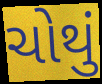
ચોથું